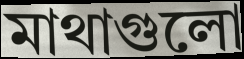
মাথাগুলো